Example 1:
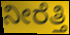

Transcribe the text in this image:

ನೀರೆತ್ತಿ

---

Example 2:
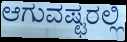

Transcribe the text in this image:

ಆಗುವಷ್ಟರಲ್ಲಿ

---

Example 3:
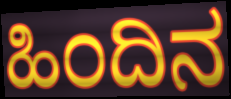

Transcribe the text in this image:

ಹಿಂದಿನ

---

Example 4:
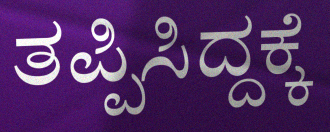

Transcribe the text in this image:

ತಪ್ಪಿಸಿದ್ದಕ್ಕೆ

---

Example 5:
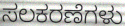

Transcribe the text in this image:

ಸಲಕರಣೆಗಳು